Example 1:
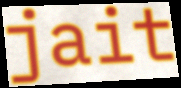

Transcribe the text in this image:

jait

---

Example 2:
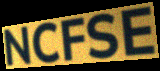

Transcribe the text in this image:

NCFSE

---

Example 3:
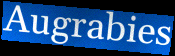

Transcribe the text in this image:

Augrabies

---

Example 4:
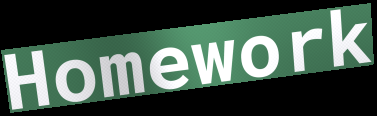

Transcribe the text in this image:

Homework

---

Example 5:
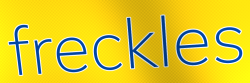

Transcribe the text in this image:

freckles